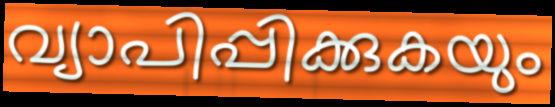
വ്യാപിപ്പിക്കുകയും